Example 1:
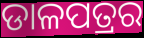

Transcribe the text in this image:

ଡାଳପତ୍ରର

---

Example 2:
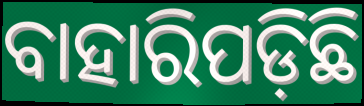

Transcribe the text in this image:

ବାହାରିପଡ଼ିଛି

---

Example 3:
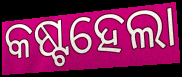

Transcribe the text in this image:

କଷ୍ଟହେଲା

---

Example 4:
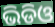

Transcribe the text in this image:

ଭିଡିଓ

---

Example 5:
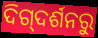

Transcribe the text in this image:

ଦିଗ୍‌ଦର୍ଶନରୁ